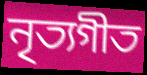
নৃত্যগীত